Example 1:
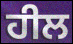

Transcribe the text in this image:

ਹੀਲ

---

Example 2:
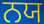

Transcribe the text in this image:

ਨਯ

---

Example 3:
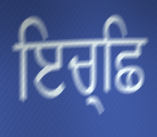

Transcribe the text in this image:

ਇਚ੍ਛਿ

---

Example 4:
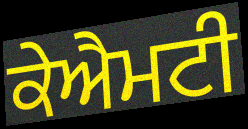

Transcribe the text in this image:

ਕੇਐਮਟੀ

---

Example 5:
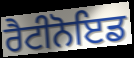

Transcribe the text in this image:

ਰੈਟੀਨੋਇਡ